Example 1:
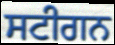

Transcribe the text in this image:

ਸਟੀਗਨ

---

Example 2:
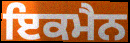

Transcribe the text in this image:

ਇਕਮੈਨ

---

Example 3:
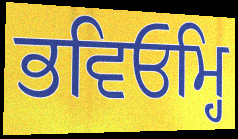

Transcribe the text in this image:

ਭਵਿਓਮ੍ਹਿ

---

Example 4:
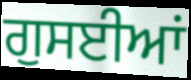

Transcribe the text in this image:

ਗੁਸਈਆਂ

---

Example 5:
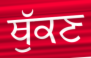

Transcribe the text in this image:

ਥੁੱਕਣ